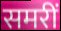
समरीं